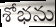
శోభను